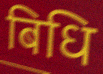
बिधि